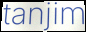
tanjim